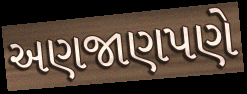
અણજાણપણે